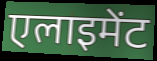
एलाइमेंट